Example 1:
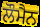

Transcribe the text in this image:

ਲੌਮੈਨ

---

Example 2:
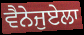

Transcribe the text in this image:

ਵੈਨੇਜੁਏਲਾ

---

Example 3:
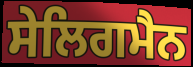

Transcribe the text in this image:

ਸੇਲਿਗਮੈਨ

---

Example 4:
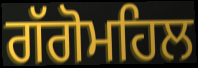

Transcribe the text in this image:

ਗੱਗੋਮਹਿਲ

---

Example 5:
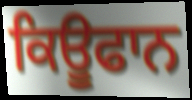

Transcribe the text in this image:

ਕਿਊਫਾਨ